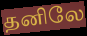
தனிலே